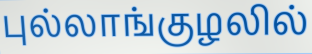
புல்லாங்குழலில்